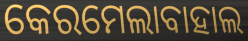
କେରମେଲାବାହାଲ